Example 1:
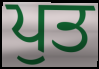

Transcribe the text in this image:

ਪੁਤ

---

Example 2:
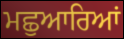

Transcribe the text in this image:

ਮਛੁਆਰਿਆਂ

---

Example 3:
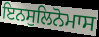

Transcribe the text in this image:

ਇਨਸੁਲਿਨੋਮਾਸ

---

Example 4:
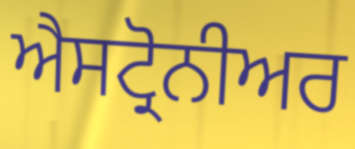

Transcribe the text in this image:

ਐਸਟ੍ਰੋਨੀਅਰ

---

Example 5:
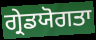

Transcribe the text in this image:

ਗ੍ਰੇਡਯੋਗਤਾ